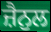
ਜ਼ੈਨੁਲ